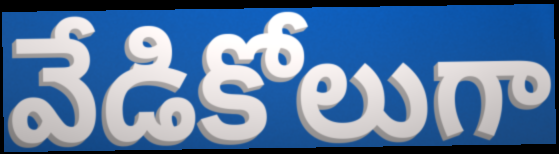
వేడికోలుగా